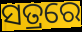
ସତ୍ରରେ